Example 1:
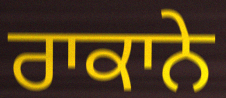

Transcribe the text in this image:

ਰਾਕਾਨੇ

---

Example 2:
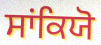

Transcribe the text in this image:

ਸਾਂਕਿਯੋ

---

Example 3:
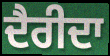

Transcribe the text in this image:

ਦੈਰੀਦਾ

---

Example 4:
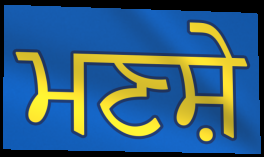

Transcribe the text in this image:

ਮਣਸ਼ੇ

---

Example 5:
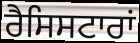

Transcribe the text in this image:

ਰੈਸਿਸਟਾਰਾਂ